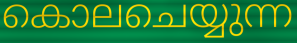
കൊലചെയ്യുന്ന